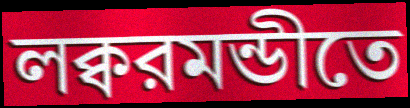
লক্বরমন্ডীতে